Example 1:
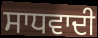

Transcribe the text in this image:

ਸਾਧਵਾਦੀ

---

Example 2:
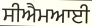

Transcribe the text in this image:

ਸੀਐਮਆਈ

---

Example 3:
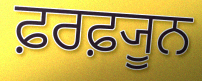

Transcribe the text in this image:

ਫ਼ਰਫ਼੍ਯੂਨ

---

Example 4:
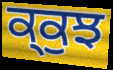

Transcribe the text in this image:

ਕ੍ਕੁਝ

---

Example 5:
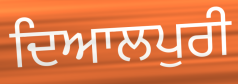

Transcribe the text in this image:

ਦਿਆਲਪੁਰੀ